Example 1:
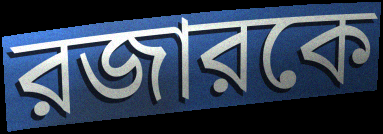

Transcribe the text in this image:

রজারকে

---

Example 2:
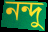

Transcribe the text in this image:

নন্দু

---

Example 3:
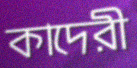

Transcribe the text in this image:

কাদেরী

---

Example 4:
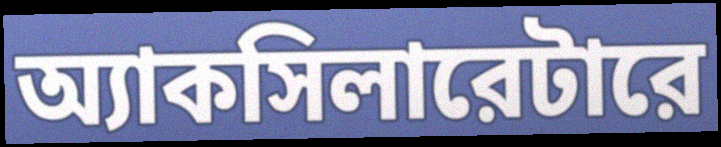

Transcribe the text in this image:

অ্যাকসিলারেটারে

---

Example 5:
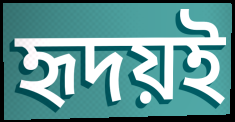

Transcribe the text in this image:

হৃদয়ই